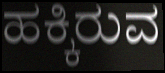
ಹಕ್ಕಿರುವ